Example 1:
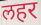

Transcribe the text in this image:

लहर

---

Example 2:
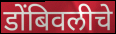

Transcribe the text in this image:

डोंबिवलीचे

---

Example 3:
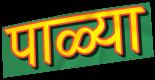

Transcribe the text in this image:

पाळ्या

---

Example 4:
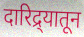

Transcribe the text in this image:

दारिद्र्यातून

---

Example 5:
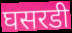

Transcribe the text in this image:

घसरडी